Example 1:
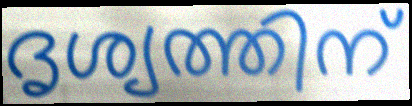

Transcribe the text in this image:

ദൃശ്യത്തിന്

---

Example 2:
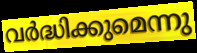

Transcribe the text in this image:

വർദ്ധിക്കുമെന്നു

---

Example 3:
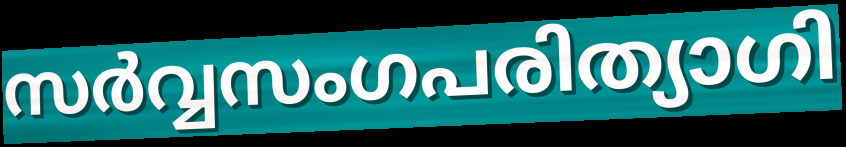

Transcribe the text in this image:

സർവ്വസംഗപരിത്യാഗി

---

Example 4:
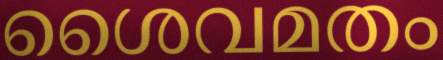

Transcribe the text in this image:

ശൈവമതം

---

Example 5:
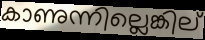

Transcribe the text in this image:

കാണുന്നില്ലെങ്കില്